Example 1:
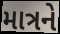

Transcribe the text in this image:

માત્રને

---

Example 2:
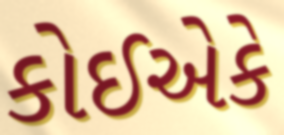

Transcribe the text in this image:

કોઈએકે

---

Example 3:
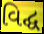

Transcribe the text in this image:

વિદ્ઘ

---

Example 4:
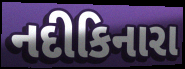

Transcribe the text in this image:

નદીકિનારા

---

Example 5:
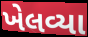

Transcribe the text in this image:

ખેલવ્યા